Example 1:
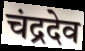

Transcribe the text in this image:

चंद्रदेव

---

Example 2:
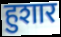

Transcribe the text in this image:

हुशार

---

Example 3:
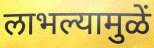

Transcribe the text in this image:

लाभल्यामुळें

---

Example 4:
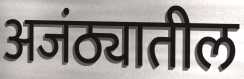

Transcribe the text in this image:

अजंठ्यातील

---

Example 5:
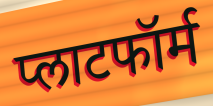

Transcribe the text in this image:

प्लाटफॉर्म